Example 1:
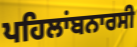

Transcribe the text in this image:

ਪਹਿਲਾਂਬਨਾਰਸੀ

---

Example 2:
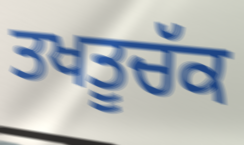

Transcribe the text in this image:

ਤਖਤੂਚੱਕ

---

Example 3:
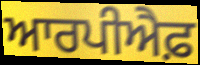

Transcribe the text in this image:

ਆਰਪੀਐਫ਼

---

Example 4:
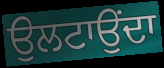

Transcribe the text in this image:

ਉਲਟਾਉਂਦਾ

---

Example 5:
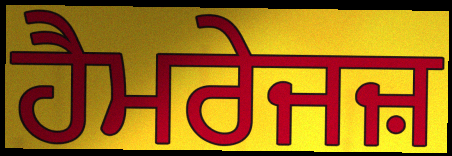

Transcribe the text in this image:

ਹੈਮਰੇਜਜ਼